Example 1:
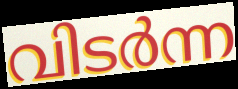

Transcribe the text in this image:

വിടർന്ന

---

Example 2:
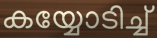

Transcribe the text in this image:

കയ്യോടിച്ച്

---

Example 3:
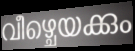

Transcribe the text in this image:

വീഴ്ചെയക്കും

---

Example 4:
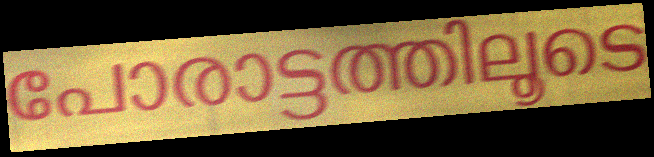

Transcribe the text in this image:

പോരാട്ടത്തിലൂടെ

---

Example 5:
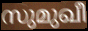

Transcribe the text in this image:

സുമുഖീ